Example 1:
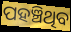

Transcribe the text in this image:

ପହଞ୍ଚିଥିବ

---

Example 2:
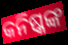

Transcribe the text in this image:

କନିଷ୍କଙ୍କ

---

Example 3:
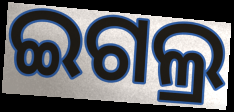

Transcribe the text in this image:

ଇଗଲ୍ର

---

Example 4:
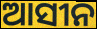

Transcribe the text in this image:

ଆସୀନ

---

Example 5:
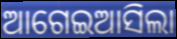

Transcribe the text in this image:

ଆଗେଇଆସିଲା